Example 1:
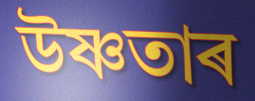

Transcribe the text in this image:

উষ্ণতাৰ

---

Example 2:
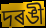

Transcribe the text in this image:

দৰঙী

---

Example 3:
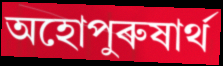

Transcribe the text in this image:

অহোপুৰুষাৰ্থ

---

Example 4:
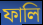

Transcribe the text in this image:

ফালি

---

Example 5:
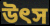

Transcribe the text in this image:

উৎস